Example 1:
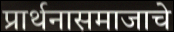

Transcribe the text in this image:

प्रार्थनासमाजाचे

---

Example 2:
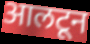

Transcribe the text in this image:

आलटून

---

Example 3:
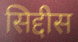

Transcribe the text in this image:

सिद्दीस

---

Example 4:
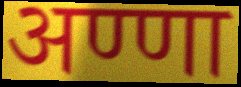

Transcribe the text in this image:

अण्णा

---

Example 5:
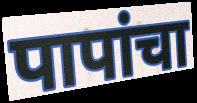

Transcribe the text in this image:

पापांचा